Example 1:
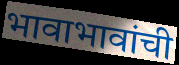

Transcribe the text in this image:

भावाभावांची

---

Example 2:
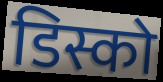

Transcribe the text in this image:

डिस्को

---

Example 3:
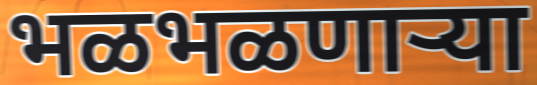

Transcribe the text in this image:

भळभळणाऱ्या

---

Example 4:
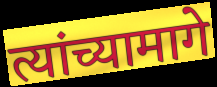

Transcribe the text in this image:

त्यांच्यामागे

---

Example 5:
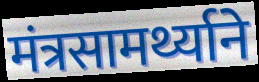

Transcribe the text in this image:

मंत्रसामर्थ्याने